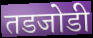
तडजोडी